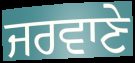
ਜਰਵਾਣੇ